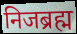
निजब्रह्म